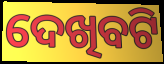
ଦେଖିବଟି